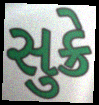
સુક્રે